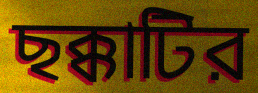
ছক্কাটির